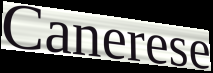
Canerese